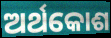
ଅର୍ଥକୋଶ